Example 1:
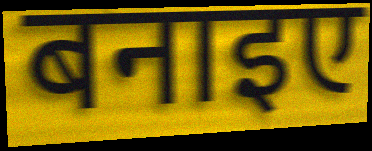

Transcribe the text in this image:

बनाइए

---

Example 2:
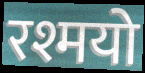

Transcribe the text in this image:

रश्मयो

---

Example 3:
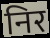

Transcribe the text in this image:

निर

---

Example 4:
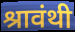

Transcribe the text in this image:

श्रावंथी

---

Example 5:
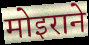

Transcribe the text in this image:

मोइराने